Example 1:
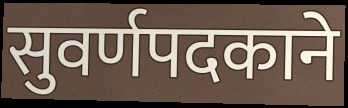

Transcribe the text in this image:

सुवर्णपदकाने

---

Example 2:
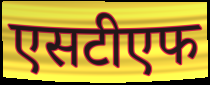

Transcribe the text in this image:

एसटीएफ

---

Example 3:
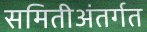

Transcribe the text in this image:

समितीअंतर्गत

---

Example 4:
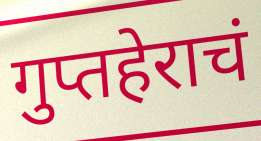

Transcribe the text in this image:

गुप्तहेराचं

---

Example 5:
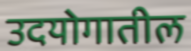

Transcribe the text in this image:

उदयोगातील